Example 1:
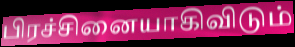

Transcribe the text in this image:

பிரச்சினையாகிவிடும்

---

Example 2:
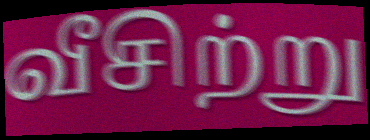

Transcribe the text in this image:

வீசிற்று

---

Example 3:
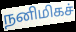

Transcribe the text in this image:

நனிமிகச்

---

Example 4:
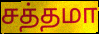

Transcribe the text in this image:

சத்தமா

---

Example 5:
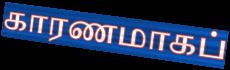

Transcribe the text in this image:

காரணமாகப்